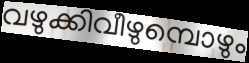
വഴുക്കിവീഴുമ്പൊഴും